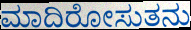
ಮಾದಿರೋಸುತನು